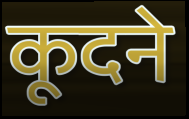
कूदने